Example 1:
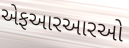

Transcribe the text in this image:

એફઆરઆરઓ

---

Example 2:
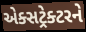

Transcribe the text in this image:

એક્સટ્રેક્ટરને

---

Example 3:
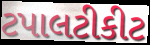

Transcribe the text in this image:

ટપાલટીકીટ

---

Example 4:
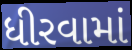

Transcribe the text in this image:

ધીરવામાં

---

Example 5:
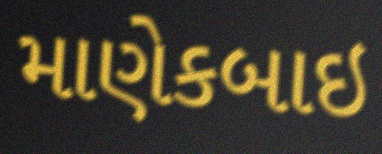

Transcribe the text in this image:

માણેકબાઇ